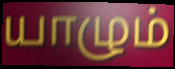
யாழும்